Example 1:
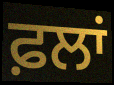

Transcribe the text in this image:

ਫ਼ਲਾਂ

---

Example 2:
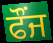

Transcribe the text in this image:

ਫੌਂਜ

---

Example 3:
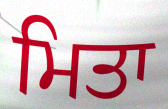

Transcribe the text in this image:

ਮਿਤਾ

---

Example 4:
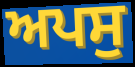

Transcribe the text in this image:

ਅਪਸੁ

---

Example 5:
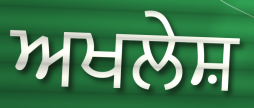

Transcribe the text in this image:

ਅਖਲੇਸ਼